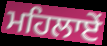
ਮਹਿਲਾਏਂ